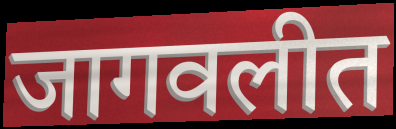
जागवलीत